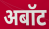
अबॉट